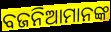
ବଜନିଆମାନଙ୍କ